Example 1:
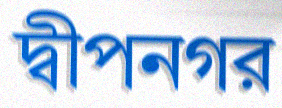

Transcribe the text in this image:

দ্বীপনগর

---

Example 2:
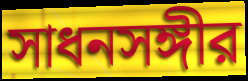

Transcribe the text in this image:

সাধনসঙ্গীর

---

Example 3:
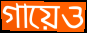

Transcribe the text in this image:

গায়েও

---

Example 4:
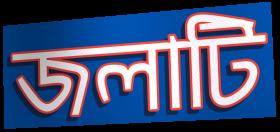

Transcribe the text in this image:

জলাটি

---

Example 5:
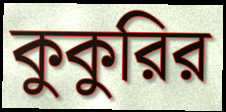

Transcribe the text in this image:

কুকুরির